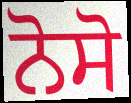
ਨੋਸੋ